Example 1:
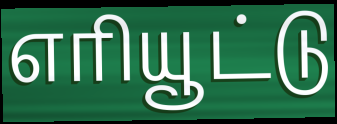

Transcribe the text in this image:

எரியூட்டு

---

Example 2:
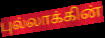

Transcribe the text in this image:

புல்லாக்கின்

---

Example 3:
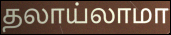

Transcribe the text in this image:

தலாய்லாமா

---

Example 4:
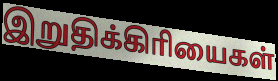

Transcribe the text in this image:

இறுதிக்கிரியைகள்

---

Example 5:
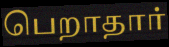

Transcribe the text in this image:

பெறாதார்